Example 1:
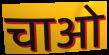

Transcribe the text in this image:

चाओ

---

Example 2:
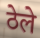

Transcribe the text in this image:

ठेले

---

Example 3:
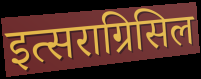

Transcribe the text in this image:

इत्सराग्रिसिल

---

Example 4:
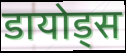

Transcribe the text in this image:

डायोड्स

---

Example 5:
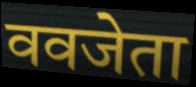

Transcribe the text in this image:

ववजेता